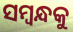
ସମ୍ବନ୍ଧକୁ